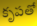
కృపతో